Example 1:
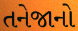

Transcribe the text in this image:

તનેજાનો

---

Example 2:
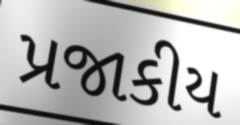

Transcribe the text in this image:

પ્રજાકીય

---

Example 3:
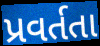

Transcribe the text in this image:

પ્રવર્તતા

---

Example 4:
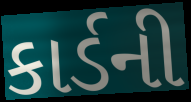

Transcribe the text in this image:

કાર્ડની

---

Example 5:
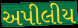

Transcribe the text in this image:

અપીલીય